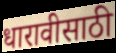
धारावीसाठी